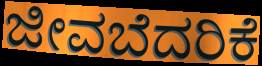
ಜೀವಬೆದರಿಕೆ